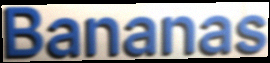
Bananas